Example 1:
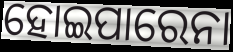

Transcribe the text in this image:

ହୋଇପାରେନା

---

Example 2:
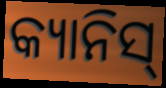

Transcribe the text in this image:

କ୍ୟାନିସ୍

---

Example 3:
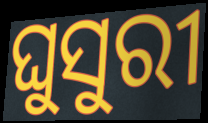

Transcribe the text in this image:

ଘୁସୁରୀ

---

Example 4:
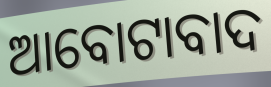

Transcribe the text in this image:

ଆବୋଟାବାଦ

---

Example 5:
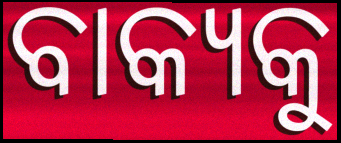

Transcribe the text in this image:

ବାକ୍ୟକୁ